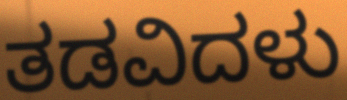
ತಡವಿದಳು